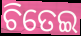
ଚିତେଇ